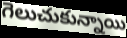
గెలుచుకున్నాయి